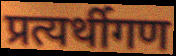
प्रत्यर्थीगण